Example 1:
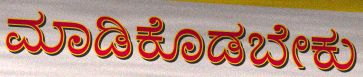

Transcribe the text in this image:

ಮಾಡಿಕೊಡಬೇಕು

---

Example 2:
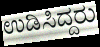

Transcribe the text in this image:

ಉಡಿಸಿದ್ದರು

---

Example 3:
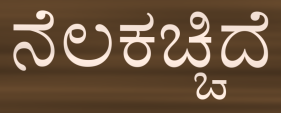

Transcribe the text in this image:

ನೆಲಕಚ್ಚಿದೆ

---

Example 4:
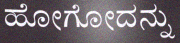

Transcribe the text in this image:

ಹೋಗೋದನ್ನು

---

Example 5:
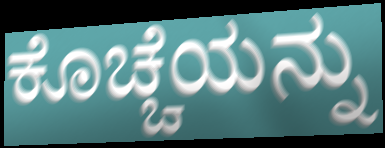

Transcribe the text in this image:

ಕೊಚ್ಚೆಯನ್ನು